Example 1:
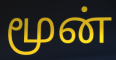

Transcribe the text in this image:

மூன்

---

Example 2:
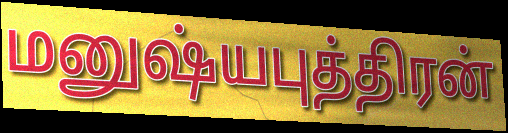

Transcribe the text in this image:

மனுஷ்யபுத்திரன்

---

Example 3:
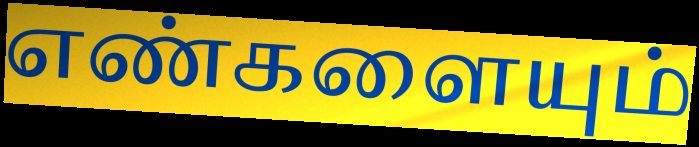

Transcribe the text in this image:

எண்களையும்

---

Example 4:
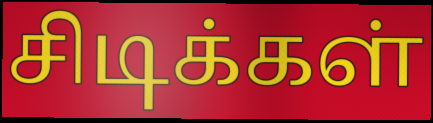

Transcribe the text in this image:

சிடிக்கள்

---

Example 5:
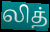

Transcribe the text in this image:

லித்